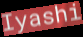
Iyashi